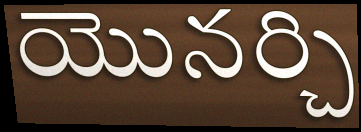
యొనర్చి